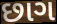
છાગ